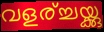
വളര്ച്ചയ്ക്കു